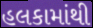
હલકામાંથી